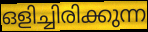
ഒളിച്ചിരിക്കുന്ന